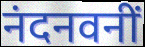
नंदनवनीं